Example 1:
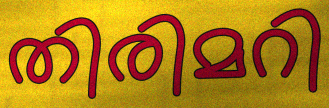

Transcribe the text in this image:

തിരിമറി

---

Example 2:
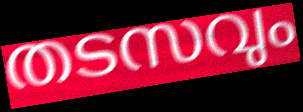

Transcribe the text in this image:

തടസവും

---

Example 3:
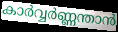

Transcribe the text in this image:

കാർവ്വർണ്ണന്താൻ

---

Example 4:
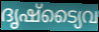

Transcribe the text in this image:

ദൃഷ്ട്യൈവ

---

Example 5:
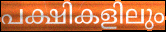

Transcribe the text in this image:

പക്ഷികളിലും